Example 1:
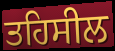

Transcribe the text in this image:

ਤਹਿਸੀਲ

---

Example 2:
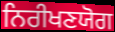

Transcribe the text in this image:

ਨਿਰੀਖਣਯੋਗ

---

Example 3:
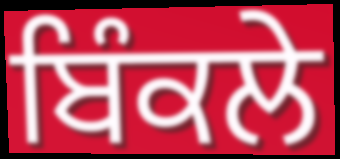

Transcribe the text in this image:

ਬਿੰਕਲੇ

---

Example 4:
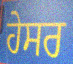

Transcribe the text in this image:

ਹੇਸਰ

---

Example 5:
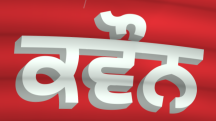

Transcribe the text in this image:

ਕਵੌਨ